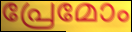
പ്രേമോം